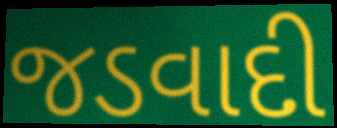
જડવાદી